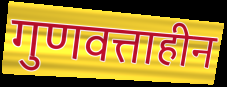
गुणवत्ताहीन